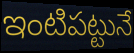
ఇంటిపట్టునే